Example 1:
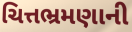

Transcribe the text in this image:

ચિત્તભ્રમણાની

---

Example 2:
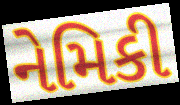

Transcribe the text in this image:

નેમિકી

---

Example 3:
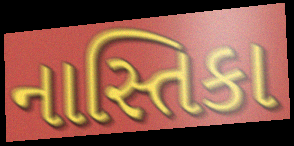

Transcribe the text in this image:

નાસ્તિકા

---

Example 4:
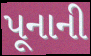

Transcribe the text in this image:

પૂનાની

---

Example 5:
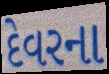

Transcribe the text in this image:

દેવરના